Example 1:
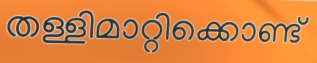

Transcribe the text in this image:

തള്ളിമാറ്റിക്കൊണ്ട്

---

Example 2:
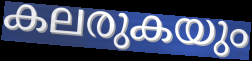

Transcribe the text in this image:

കലരുകയും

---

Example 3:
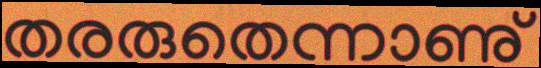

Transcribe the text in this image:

തരരുതെന്നാണു്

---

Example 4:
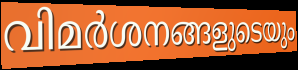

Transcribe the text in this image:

വിമർശനങ്ങളുടെയും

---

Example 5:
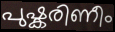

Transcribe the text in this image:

പുഷ്കരിണീം